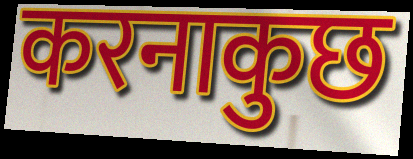
करनाकुछ